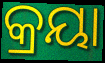
କ୍ରୟା